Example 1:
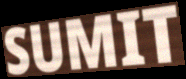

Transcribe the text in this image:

SUMIT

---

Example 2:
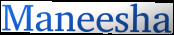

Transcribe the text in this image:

Maneesha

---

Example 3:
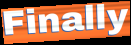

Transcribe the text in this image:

Finally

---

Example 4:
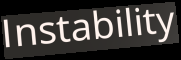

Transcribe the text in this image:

Instability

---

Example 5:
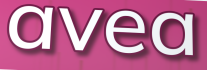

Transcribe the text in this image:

avea